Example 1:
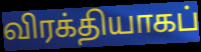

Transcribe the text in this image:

விரக்தியாகப்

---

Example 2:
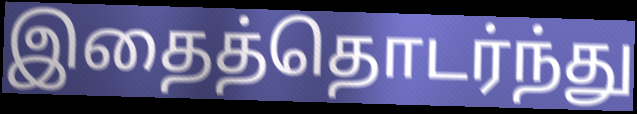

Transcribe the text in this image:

இதைத்தொடர்ந்து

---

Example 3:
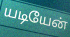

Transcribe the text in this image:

யடியேன்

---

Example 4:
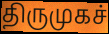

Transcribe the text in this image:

திருமுகச்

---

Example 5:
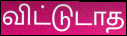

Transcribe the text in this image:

விட்டுடாத